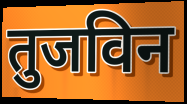
तुजविन